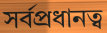
সর্বপ্রধানত্ব